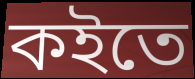
কইতে